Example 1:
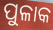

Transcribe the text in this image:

ପୁଳାକ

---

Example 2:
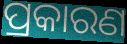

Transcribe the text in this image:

ପ୍ରକାରଣ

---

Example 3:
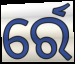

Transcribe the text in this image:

ର୍ରେ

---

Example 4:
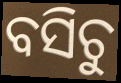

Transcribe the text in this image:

ବସିଚୁ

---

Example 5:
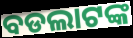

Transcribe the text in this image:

ବଡଲାଟଙ୍କ